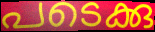
പടെക്കു